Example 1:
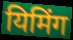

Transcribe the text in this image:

यिमिंग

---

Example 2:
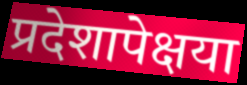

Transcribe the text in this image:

प्रदेशापेक्षया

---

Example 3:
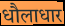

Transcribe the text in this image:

धौलाधार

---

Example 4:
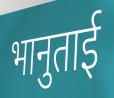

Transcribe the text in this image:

भानुताई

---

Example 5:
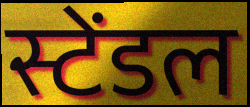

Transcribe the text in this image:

स्टेंडल